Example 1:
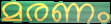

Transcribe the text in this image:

മരണം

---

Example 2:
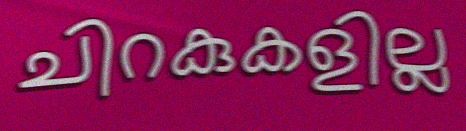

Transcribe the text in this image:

ചിറകുകളില്ല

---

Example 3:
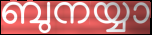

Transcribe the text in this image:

ബുനയ്യാ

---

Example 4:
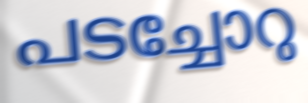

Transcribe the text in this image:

പടച്ചോറു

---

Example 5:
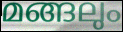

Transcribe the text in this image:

മങ്ങലും